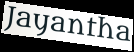
Jayantha